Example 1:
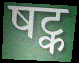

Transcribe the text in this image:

षट्क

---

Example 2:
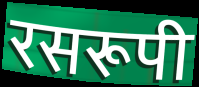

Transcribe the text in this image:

रसरूपी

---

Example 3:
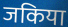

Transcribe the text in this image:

जकिया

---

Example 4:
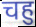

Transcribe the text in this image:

चहु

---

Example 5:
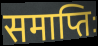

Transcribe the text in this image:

समाप्तिः